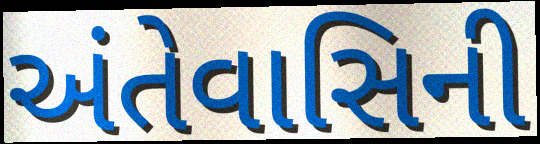
અંતેવાસિની